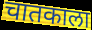
चातकाला